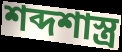
শব্দশাস্ত্র